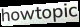
howtopic